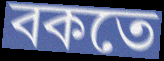
বকতে